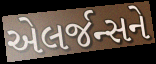
એલર્જન્સને